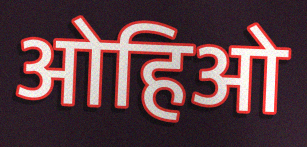
ओहिओ